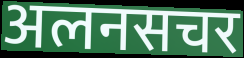
अलनसचर